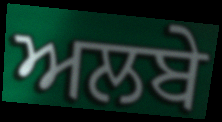
ਅਲਬੇ